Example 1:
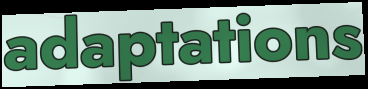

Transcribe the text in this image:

adaptations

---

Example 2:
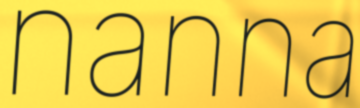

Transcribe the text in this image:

nanna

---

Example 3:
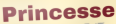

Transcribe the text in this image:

Princesse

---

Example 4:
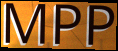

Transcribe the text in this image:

MPP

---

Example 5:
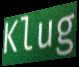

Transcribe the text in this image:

Klug